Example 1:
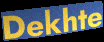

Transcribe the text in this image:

Dekhte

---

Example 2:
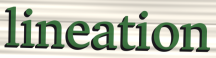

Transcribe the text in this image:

lineation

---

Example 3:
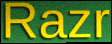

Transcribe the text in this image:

Razr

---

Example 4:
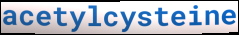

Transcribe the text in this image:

acetylcysteine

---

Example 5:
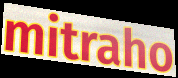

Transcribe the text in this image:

mitraho